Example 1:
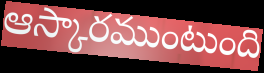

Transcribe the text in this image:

ఆస్కారముంటుంది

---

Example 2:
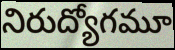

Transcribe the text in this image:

నిరుద్యోగమూ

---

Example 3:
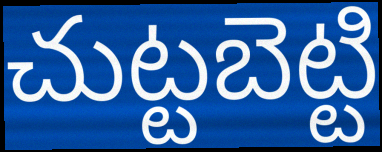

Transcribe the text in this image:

చుట్టబెట్టి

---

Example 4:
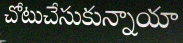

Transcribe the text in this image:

చోటుచేసుకున్నాయా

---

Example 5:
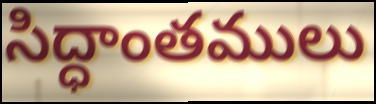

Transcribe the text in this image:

సిద్ధాంతములు